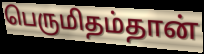
பெருமிதம்தான்